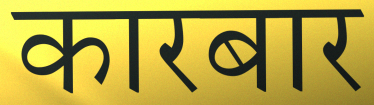
कारबार